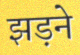
झड़ने